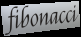
fibonacci